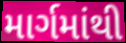
માર્ગમાંથી